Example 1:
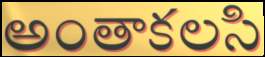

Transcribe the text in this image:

అంతాకలసి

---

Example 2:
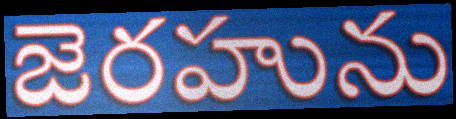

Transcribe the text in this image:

జెరహును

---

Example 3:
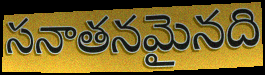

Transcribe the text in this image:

సనాతనమైనది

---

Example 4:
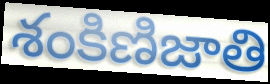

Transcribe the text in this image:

శంకిణిజాతి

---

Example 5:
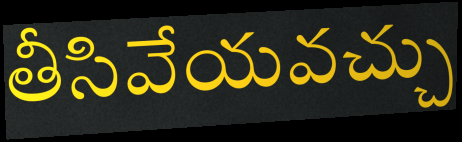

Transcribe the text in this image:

తీసివేయవచ్చు